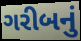
ગરીબનું